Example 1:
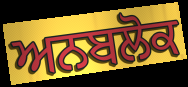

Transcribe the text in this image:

ਅਨਬਲੋਕ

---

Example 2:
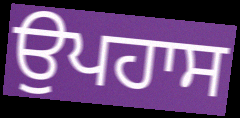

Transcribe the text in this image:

ਉਪਹਾਸ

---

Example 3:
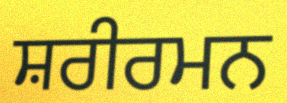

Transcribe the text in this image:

ਸ਼ਰੀਰਮਨ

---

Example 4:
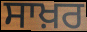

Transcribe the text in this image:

ਸਾਖ਼ਰ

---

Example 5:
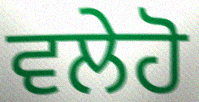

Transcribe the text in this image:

ਵਲੇਹੋ